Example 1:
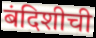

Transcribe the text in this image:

बंदिशीची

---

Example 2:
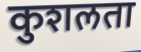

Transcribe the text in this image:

कुशलता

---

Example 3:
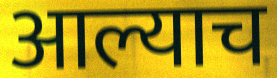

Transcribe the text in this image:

आल्याच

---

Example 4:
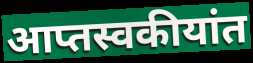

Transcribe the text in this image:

आप्तस्वकीयांत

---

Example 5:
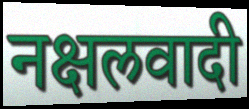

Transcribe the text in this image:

नक्षलवादी